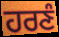
ਹਰਣੰ